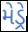
મેડ્રે